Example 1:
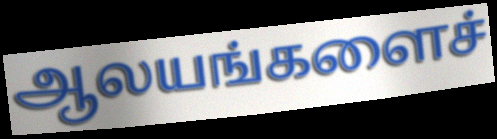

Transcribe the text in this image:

ஆலயங்களைச்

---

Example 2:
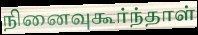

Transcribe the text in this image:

நினைவுகூர்ந்தாள்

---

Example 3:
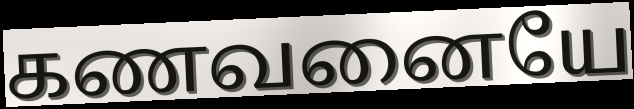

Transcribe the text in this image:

கணவனையே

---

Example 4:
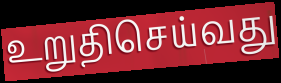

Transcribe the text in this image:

உறுதிசெய்வது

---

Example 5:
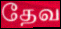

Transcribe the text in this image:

தேவ